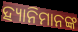
ହ୍ୟାନିମାନଙ୍କ